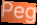
Peg